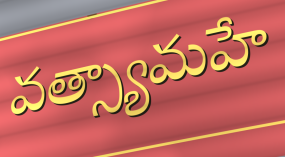
వత్స్యామహే